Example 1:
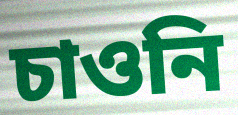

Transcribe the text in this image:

চাওনি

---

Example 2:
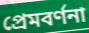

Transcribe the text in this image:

প্রেমবর্ণনা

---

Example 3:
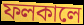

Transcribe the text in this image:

ফলকালে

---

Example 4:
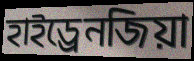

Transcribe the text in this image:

হাইড্রেনজিয়া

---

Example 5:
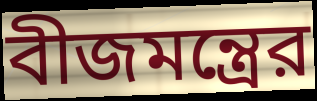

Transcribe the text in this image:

বীজমন্ত্রের